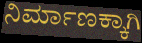
ನಿರ್ಮಾಣಕ್ಕಾಗಿ